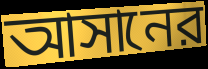
আসানের